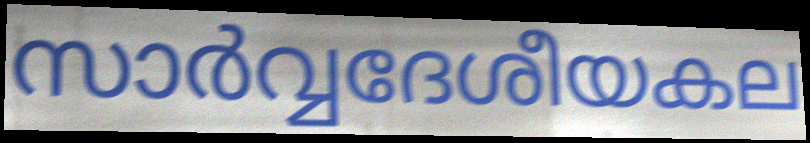
സാർവ്വദേശീയകല